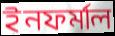
ইনফর্মাল